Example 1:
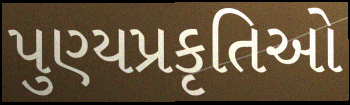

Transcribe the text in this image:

પુણ્યપ્રકૃતિઓ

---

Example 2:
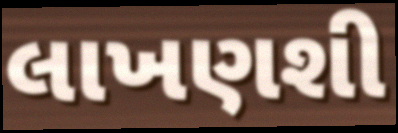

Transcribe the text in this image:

લાખણશી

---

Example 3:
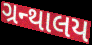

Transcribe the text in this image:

ગ્રન્થાલય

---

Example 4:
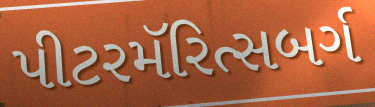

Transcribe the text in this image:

પીટરમૅરિત્સબર્ગ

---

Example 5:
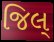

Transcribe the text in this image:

જિલ્